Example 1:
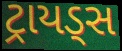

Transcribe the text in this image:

ટ્રાયડ્સ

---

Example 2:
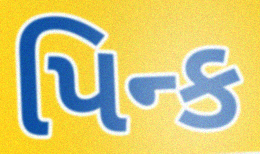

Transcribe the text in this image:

પિન્ક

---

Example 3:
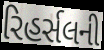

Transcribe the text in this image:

રિહર્સલની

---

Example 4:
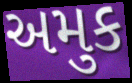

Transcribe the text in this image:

અમુક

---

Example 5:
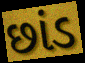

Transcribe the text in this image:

છાંડ